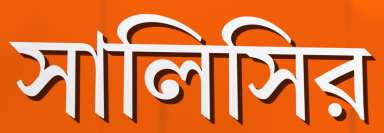
সালিসির